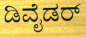
ಡಿವೈಡರ್